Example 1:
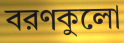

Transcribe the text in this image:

বরণকুলো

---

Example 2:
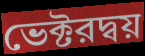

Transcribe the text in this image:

ভেক্টরদ্বয়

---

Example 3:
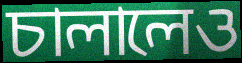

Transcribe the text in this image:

চালালেও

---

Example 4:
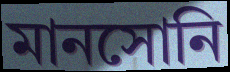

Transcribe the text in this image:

মানসোনি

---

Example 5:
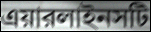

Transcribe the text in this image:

এয়ারলাইনসটি